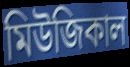
মিউজিকাল